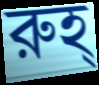
রুহ্